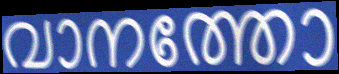
വാനത്തോ